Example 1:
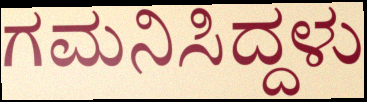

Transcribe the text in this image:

ಗಮನಿಸಿದ್ದಳು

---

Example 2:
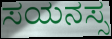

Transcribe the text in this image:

ಸಯನಸ್ಸ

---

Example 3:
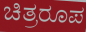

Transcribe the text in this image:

ಚಿತ್ರರೂಪ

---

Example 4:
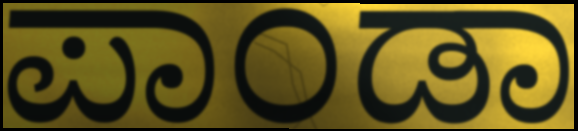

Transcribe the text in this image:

ಪಾಂಡಾ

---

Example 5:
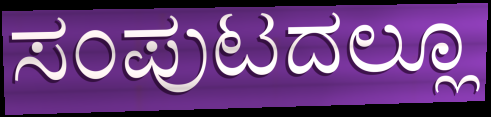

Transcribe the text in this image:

ಸಂಪುಟದಲ್ಲೂ